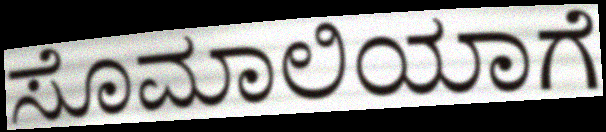
ಸೊಮಾಲಿಯಾಗೆ